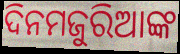
ଦିନମଜୁରିଆଙ୍କ